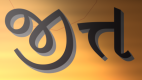
જીત્ત